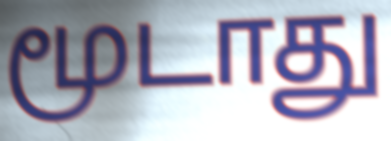
மூடாது